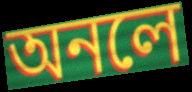
অনলে